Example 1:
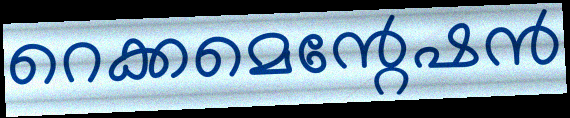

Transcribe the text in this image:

റെക്കമെന്റേഷൻ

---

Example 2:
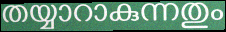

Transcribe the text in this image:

തയ്യാറാകുന്നതും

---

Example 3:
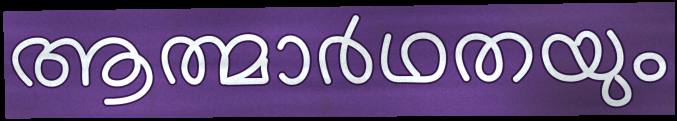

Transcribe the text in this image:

ആത്മാർഥതയും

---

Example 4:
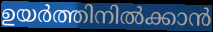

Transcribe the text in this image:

ഉയർത്തിനിൽക്കാൻ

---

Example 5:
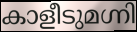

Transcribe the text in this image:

കാളീടുമഗ്നി